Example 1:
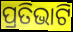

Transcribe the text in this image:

ପ୍ରତିଭାଟି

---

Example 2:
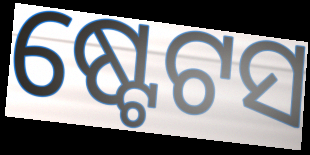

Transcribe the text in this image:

ଷ୍ଟେଟସ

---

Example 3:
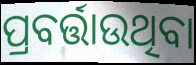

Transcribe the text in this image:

ପ୍ରବର୍ତ୍ତାଉଥିବା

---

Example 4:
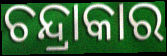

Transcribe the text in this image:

ଚନ୍ଦ୍ରାକାର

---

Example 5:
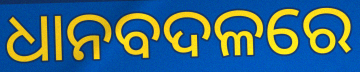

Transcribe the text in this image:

ଧାନବଦଳରେ